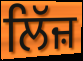
ਲਿੱਜ਼